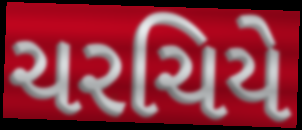
ચરચિયે